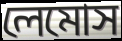
লেমোস